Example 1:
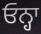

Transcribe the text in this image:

ਓਨ੍ਹਾ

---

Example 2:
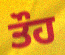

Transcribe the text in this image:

ਤੌਹ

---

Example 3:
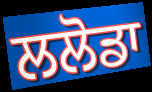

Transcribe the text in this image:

ਲਲੋਡਾ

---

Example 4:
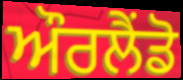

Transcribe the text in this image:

ਔਰਲੈਂਡੋ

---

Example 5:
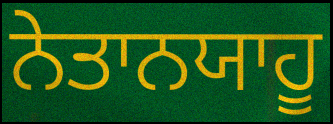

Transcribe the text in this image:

ਨੇਤਾਨਯਾਹੂ